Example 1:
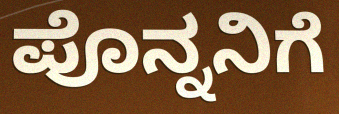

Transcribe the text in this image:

ಪೊನ್ನನಿಗೆ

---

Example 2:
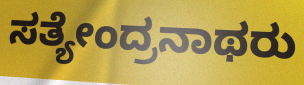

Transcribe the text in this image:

ಸತ್ಯೇಂದ್ರನಾಥರು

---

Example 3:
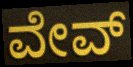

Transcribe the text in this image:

ವೇವ್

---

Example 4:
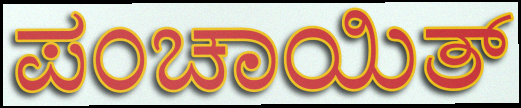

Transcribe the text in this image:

ಪಂಚಾಯಿತ್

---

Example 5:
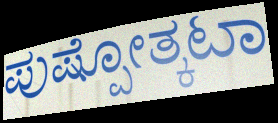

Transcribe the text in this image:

ಪುಷ್ಪೋತ್ಕಟಾ